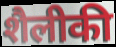
शैलीकी